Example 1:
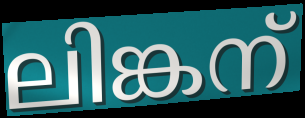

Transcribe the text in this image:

ലിങ്കന്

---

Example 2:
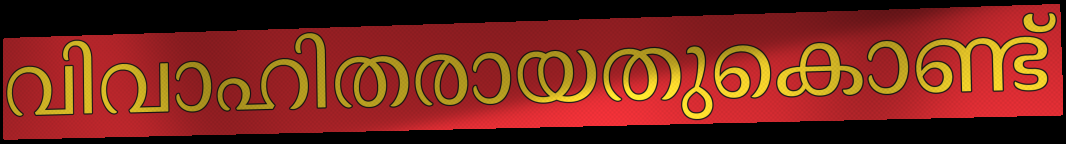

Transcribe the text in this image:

വിവാഹിതരായതുകൊണ്ട്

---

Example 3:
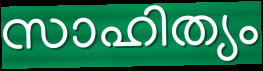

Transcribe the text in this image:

സാഹിത്യം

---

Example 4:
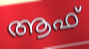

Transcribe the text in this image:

ആഫ്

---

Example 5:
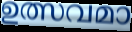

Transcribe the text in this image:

ഉത്സവമാ